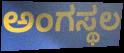
ಅಂಗಸ್ಥಲ